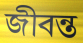
জীবন্ত